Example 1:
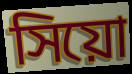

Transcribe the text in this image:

সিয়ো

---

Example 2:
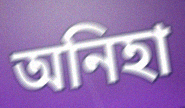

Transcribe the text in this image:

অনিহা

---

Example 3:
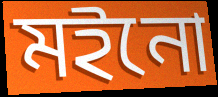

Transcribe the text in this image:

মইনো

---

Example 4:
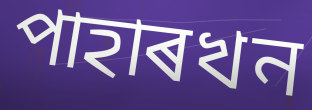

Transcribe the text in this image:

পাহাৰখন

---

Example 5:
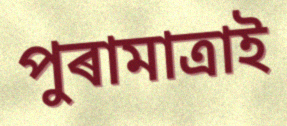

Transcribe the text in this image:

পুৰামাত্ৰাই